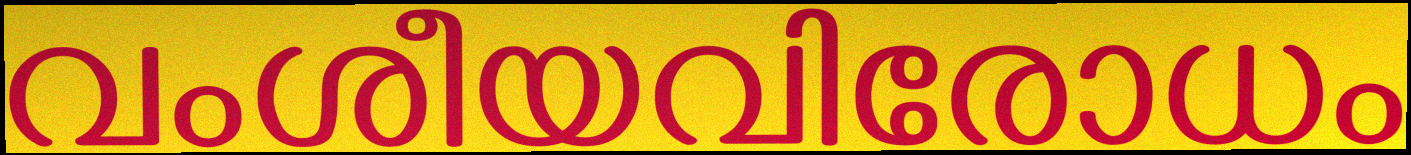
വംശീയവിരോധം